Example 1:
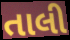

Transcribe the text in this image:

તાલી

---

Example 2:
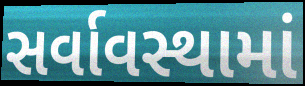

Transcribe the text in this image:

સર્વાવસ્થામાં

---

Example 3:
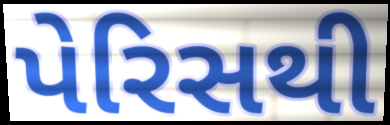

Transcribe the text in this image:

પેરિસથી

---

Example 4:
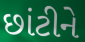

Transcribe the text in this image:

છાંટીને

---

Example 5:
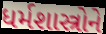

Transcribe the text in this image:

ધર્મશાસ્ત્રોને